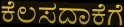
ಕೆಲಸದಾಕೆಗೆ